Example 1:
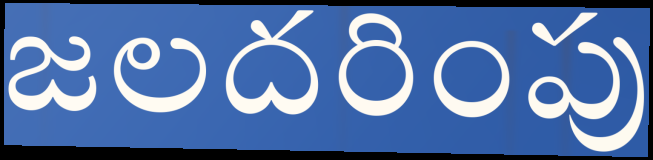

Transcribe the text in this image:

జలదరింపు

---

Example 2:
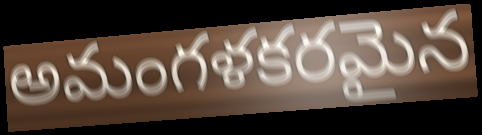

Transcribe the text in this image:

అమంగళకరమైన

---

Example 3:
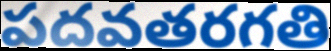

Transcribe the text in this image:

పదవతరగతి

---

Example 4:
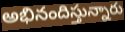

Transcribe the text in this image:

అభినందిస్తున్నారు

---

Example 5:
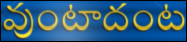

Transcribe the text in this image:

వుంటాదంట